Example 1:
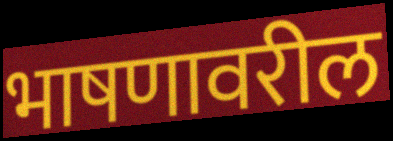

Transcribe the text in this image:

भाषणावरील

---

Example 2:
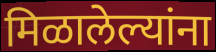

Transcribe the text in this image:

मिळालेल्यांना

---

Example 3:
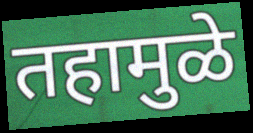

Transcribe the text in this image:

तहामुळे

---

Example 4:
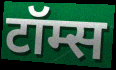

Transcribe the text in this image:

टॉम्स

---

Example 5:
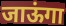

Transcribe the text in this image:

जाऊंगा